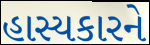
હાસ્યકારને